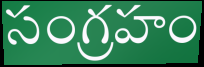
సంగ్రహం